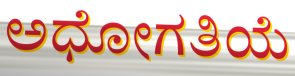
ಅಧೋಗತಿಯೆ